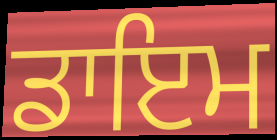
ਡਾਇਮ